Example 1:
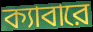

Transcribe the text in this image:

ক্যাবারে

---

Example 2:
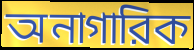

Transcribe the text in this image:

অনাগারিক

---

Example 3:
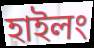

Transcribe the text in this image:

হাইলং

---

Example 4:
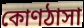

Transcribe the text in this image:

কোণঠাসা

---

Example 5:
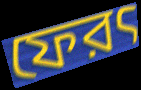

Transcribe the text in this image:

ফেরৎ